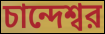
চান্দেশ্বর